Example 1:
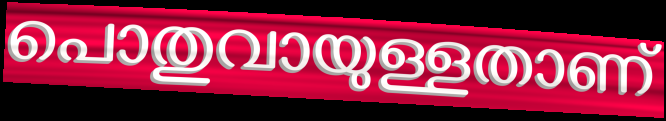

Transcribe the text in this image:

പൊതുവായുള്ളതാണ്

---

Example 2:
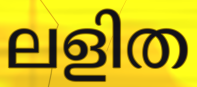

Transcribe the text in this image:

ലളിത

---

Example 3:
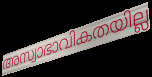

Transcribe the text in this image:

അസ്വാഭാവികതയില്ല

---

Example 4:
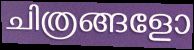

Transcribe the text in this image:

ചിത്രങ്ങളോ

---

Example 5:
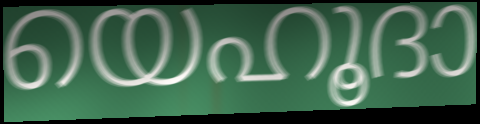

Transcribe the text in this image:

യെഹൂദാ